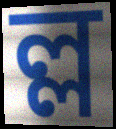
ল্ল